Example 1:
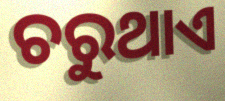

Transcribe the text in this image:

ଚରୁଥାଏ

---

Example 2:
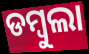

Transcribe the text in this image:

ଡମ୍ୱୁଲା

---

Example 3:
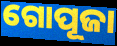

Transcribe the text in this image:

ଗୋପୂଜା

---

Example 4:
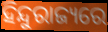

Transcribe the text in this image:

ହିନ୍ଦୁରାଜ୍ୟରେ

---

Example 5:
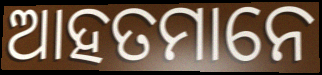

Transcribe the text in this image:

ଆହତମାନେ